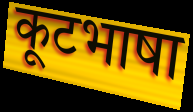
कूटभाषा